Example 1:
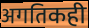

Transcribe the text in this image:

अगतिकही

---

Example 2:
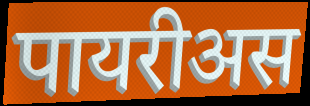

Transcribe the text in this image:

पायरीअस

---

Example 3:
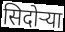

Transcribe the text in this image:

सिदोर्‍या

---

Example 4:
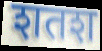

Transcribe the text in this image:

शतश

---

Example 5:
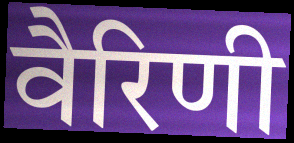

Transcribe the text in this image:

वैरिणी